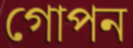
গোপন